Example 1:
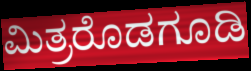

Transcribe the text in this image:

ಮಿತ್ರರೊಡಗೂಡಿ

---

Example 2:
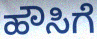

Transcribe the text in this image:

ಹೌಸಿಗೆ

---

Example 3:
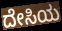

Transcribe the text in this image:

ದೇಸಿಯ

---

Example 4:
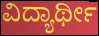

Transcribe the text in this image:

ವಿದ್ಯಾರ್ಥೀ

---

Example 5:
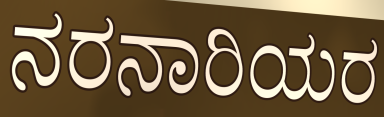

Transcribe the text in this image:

ನರನಾರಿಯರ